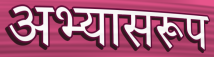
अभ्यासरूप